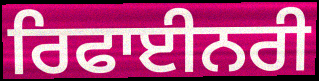
ਰਿਫਾਈਨਰੀ